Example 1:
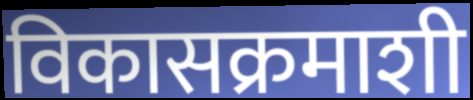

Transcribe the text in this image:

विकासक्रमाशी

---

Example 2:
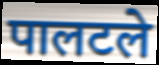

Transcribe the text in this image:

पालटले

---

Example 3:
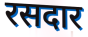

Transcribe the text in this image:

रसदार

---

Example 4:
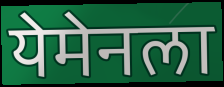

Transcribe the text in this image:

येमेनला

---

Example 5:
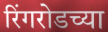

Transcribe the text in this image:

रिंगरोडच्या